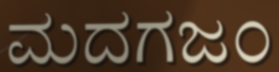
ಮದಗಜಂ